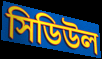
সিডিউল